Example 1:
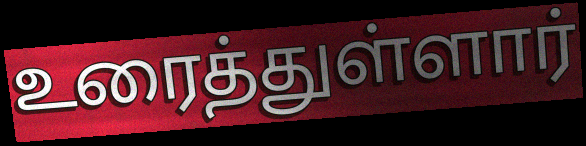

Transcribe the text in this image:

உரைத்துள்ளார்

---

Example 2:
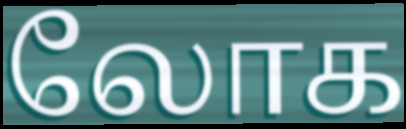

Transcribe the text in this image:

லோக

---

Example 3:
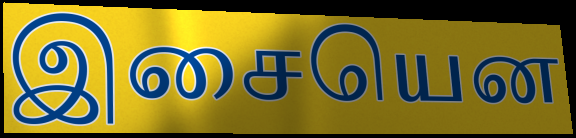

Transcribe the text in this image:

இசையென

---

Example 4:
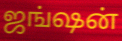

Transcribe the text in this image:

ஜங்ஷன்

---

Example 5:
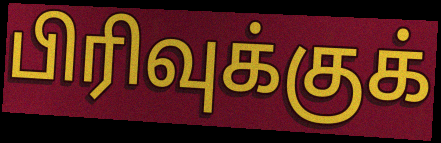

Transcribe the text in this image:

பிரிவுக்குக்